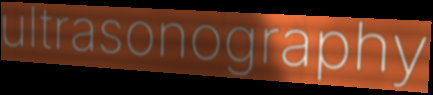
ultrasonography